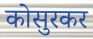
कोसुरकर